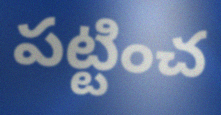
పట్టించ